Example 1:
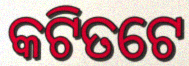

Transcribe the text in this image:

କଟିତଟେ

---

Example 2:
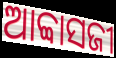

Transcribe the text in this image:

ଆବ୍ବାସଜୀ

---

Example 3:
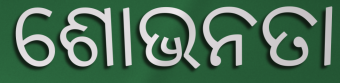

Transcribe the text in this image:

ଶୋଭନତା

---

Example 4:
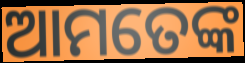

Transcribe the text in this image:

ଆମତେଙ୍କ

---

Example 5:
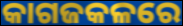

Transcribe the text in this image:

କାଗଜକଳରେ